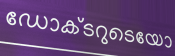
ഡോക്ടറുടെയോ